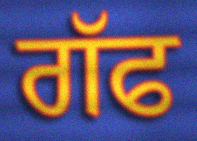
ਗੱਫ